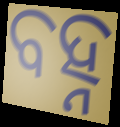
ବହ୍ନ